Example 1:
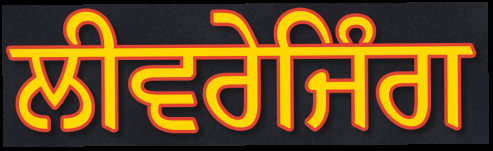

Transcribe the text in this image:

ਲੀਵਰੇਜਿੰਗ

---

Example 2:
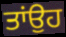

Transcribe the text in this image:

ਤਾਂਉਹ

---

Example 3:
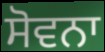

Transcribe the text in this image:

ਸੋਵਨਾ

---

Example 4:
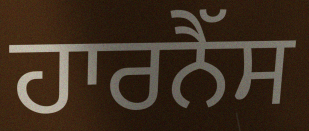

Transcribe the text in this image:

ਹਾਰਨੈੱਸ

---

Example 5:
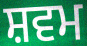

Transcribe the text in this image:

ਸ਼ਵਮ